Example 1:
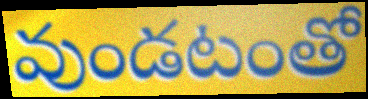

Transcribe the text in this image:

వుండటంతో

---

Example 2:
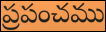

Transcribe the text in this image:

ప్రపంచము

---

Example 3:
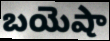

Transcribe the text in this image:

బయెషా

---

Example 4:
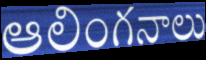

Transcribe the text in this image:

ఆలింగనాలు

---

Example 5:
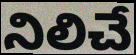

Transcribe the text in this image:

నిలిచే